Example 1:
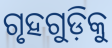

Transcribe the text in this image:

ଗୃହଗୁଡ଼ିକୁ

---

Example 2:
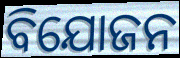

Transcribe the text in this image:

ବିଯୋଜନ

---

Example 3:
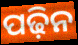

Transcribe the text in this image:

ପଢ଼ିନ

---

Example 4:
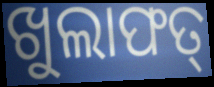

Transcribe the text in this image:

ଖୁଲାଫତ୍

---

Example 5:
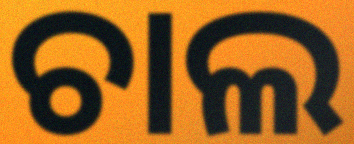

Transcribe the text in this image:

ଚାଲ